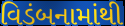
વિડંબનામાંથી